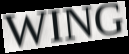
WING